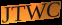
JTWC